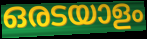
ഒരടയാളം